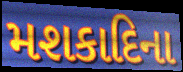
મશકાદિના